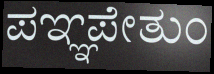
ಪಞ್ಞಪೇತುಂ